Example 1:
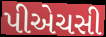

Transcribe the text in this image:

પીએચસી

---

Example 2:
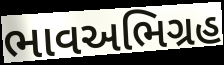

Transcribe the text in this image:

ભાવઅભિગ્રહ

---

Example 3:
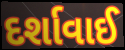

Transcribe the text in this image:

દર્શાવાઈ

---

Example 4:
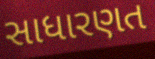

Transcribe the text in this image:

સાધારણત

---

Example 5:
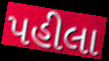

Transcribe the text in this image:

પહીલા